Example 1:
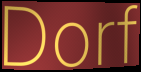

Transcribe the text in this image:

Dorf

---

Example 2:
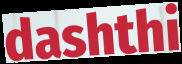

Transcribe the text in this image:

dashthi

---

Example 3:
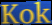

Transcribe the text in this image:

Kok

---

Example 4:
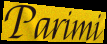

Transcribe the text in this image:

Parimi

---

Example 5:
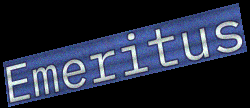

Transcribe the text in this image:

Emeritus